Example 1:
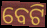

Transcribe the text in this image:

ବେଟି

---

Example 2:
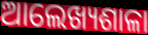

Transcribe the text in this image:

ଆଲେଖ୍ୟଶାଳା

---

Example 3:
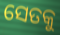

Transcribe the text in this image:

ସେତକୁ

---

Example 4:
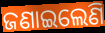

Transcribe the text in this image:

ଜଣାଇଲେଣି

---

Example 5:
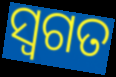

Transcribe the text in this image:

ସ୍ଵଗତ